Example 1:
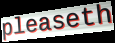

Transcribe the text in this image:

pleaseth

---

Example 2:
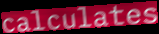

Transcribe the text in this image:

calculates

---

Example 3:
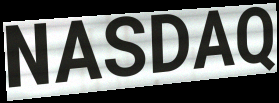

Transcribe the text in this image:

NASDAQ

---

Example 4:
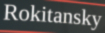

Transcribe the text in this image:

Rokitansky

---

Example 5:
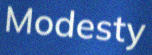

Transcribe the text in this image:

Modesty